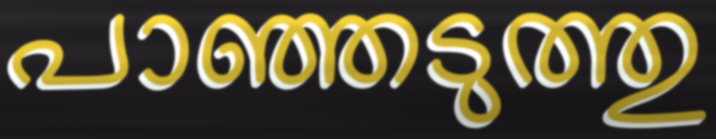
പാഞ്ഞടുത്തു